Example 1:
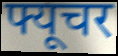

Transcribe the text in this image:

फ्यूचर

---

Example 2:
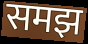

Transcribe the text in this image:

समझ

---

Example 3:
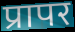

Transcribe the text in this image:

प्रापर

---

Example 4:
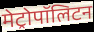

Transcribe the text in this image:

मेट्रोपॉलिटन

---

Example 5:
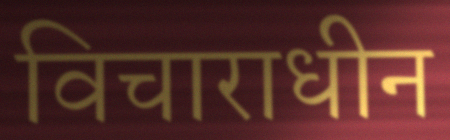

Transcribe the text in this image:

विचाराधीन